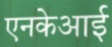
एनकेआई